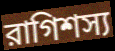
রাগিশস্য